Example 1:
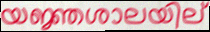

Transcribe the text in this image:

യജ്ഞശാലയില്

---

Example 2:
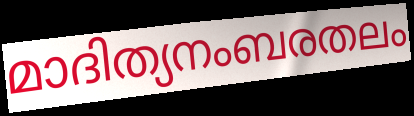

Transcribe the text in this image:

മാദിത്യനംബരതലം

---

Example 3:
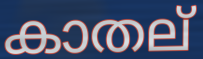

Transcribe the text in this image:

കാതല്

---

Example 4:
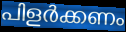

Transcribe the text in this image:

പിളർക്കണം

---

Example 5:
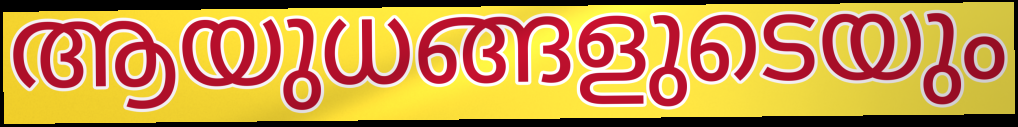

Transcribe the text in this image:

ആയുധങ്ങളുടെയും